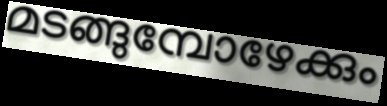
മടങ്ങുമ്പോഴേക്കും